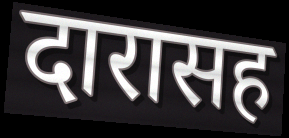
दारासह